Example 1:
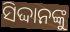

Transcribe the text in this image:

ସିଦ୍ଦାନଙ୍କୁ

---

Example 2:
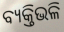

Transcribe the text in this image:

ବ୍ୟକ୍ତିଭଳି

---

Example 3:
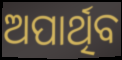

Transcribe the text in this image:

ଅପାର୍ଥିବ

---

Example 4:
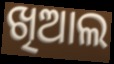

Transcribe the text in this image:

ଖିଆଲ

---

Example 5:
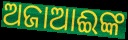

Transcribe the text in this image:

ଅଜାଆଈଙ୍କ